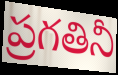
ప్రగతినీ